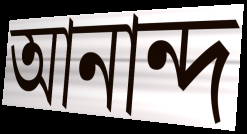
আনান্দ